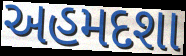
અહમદશા